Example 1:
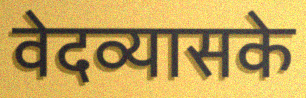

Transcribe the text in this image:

वेदव्यासके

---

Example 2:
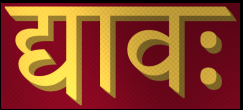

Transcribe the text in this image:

द्यावः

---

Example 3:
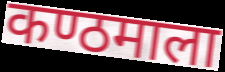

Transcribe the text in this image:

कण्ठमाला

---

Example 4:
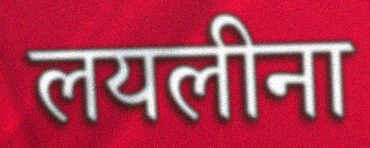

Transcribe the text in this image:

लयलीना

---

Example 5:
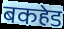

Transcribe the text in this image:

बकहेड